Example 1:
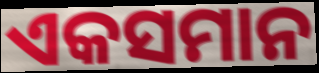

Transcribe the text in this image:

ଏକସମାନ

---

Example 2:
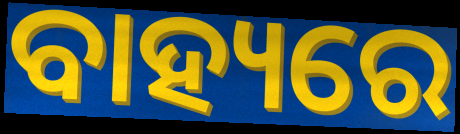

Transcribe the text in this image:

ବାହ୍ୟରେ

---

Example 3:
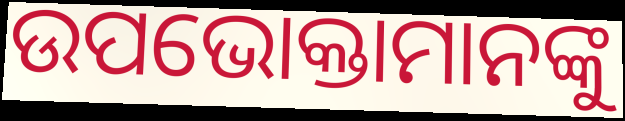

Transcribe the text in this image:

ଉପଭୋକ୍ତାମାନଙ୍କୁ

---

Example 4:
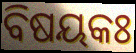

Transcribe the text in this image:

ବିଷୟକଃ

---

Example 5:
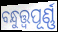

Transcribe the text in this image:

ବନ୍ଧୁତ୍ତ୍ୱପୂର୍ଣ୍ଣ